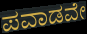
ಪವಾಡವೇ